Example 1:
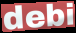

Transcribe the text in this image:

debi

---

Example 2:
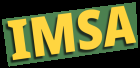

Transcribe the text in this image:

IMSA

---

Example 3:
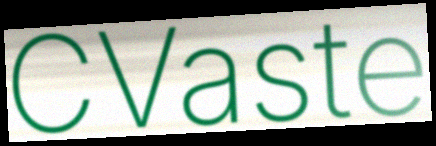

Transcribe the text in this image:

CVaste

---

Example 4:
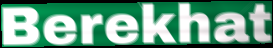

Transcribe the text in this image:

Berekhat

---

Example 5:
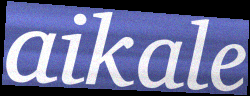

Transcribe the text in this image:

aikale